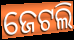
ଜେଟଲି